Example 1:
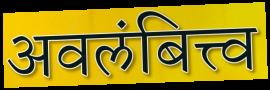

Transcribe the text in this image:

अवलंबित्त्व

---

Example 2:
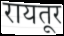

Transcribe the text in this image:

रायतूर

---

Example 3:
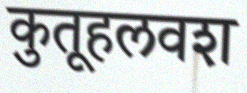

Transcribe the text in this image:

कुतूहलवश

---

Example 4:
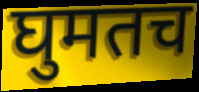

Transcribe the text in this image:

घुमतच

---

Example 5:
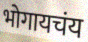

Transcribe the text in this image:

भोगायचंय